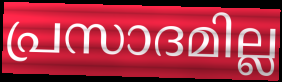
പ്രസാദമില്ല